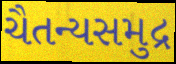
ચૈતન્યસમુદ્ર